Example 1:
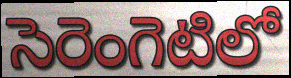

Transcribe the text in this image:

సెరెంగెటిలో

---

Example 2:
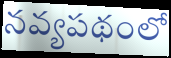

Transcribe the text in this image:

నవ్యపథంలో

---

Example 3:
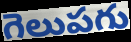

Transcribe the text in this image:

గెలుపగు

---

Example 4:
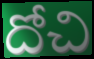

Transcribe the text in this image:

దోచి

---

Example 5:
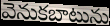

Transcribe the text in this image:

వెనుకబాటును